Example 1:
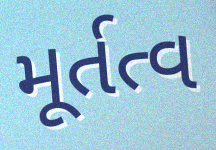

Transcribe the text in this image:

મૂર્તત્વ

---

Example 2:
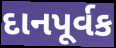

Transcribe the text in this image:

દાનપૂર્વક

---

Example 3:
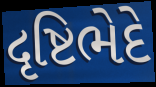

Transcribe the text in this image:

દૃષ્ટિભેદે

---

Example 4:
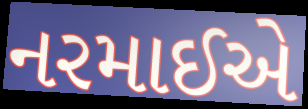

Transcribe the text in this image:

નરમાઈએ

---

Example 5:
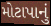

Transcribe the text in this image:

મોટાપાનું